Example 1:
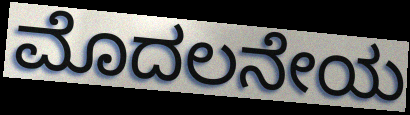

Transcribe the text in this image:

ಮೊದಲನೇಯ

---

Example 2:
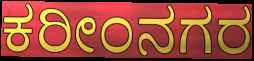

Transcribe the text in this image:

ಕರೀಂನಗರ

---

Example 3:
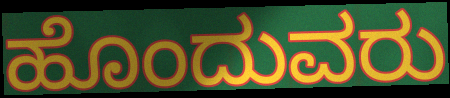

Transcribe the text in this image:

ಹೊಂದುವರು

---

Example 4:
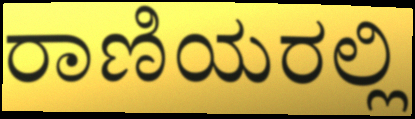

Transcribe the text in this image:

ರಾಣಿಯರಲ್ಲಿ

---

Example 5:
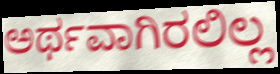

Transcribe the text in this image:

ಅರ್ಥವಾಗಿರಲಿಲ್ಲ